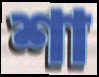
শা